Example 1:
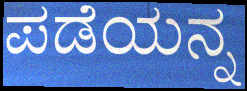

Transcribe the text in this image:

ಪಡೆಯನ್ನ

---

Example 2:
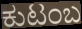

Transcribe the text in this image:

ಕುಟಂಬ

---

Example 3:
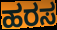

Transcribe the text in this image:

ಹರಸ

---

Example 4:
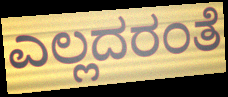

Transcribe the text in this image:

ಎಲ್ಲದರಂತೆ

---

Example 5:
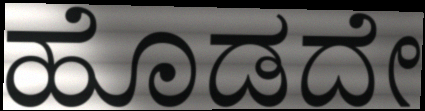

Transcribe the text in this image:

ಹೊಡದೇ